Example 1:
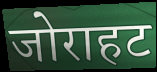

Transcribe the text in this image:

जोराहट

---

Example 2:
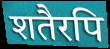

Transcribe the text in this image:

शतैरपि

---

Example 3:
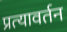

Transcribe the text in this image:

प्रत्‍यावर्तन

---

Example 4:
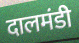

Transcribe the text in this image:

दालमंडी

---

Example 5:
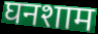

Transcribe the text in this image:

घनशाम